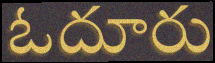
ఓదూరు